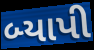
બ્યાપી